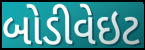
બોડીવેઇટ